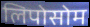
लिपोसोम